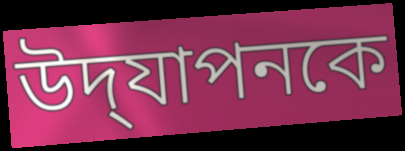
উদ্‌যাপনকে